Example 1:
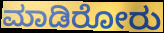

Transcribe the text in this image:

ಮಾಡಿರೋರು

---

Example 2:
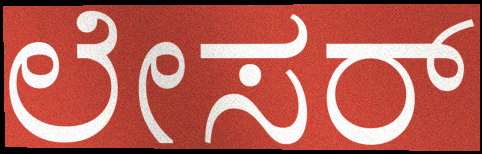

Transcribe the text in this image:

ಲೇಸರ್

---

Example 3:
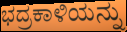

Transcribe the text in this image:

ಭದ್ರಕಾಳಿಯನ್ನು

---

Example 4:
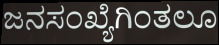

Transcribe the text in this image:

ಜನಸಂಖ್ಯೆಗಿಂತಲೂ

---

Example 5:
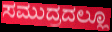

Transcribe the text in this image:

ಸಮುದ್ರದಲ್ಲೂ